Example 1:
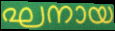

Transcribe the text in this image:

ഘനായ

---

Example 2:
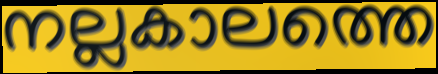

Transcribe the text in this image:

നല്ലകാലത്തെ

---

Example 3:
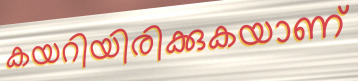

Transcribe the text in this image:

കയറിയിരിക്കുകയാണ്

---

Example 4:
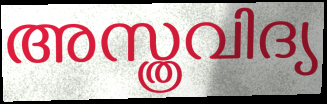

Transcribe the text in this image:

അസ്ത്രവിദ്യ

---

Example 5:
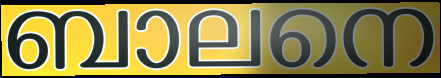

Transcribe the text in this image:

ബാലനെ